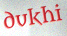
dukhi